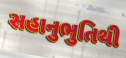
સહાનુભુતિથી